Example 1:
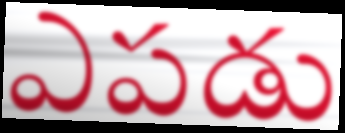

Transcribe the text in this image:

ఎపడు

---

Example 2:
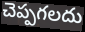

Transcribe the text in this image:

చెప్పగలదు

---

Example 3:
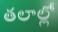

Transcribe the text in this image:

తలాల్లో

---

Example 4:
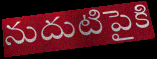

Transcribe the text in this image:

నుదుటిపైకి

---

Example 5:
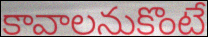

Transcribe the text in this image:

కావాలనుకొంటే